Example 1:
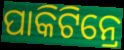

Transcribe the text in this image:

ପାକିଟିନ୍ରେ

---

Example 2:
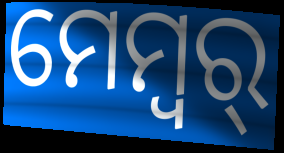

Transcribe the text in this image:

ମେମ୍ବର୍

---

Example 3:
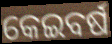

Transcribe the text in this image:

କେଇବର୍ଷ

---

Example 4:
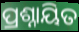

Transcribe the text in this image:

ପ୍ରଶ୍ନାୟିତ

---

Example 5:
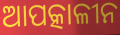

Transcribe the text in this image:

ଆପତ୍କାଳୀନ